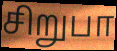
சிறுபா